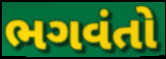
ભગવંતો